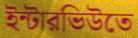
ইন্টারভিউতে